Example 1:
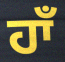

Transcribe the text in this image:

ਹਾਁ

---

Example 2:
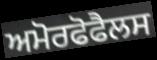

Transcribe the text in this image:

ਅਮੋਰਫੋਫੈਲਸ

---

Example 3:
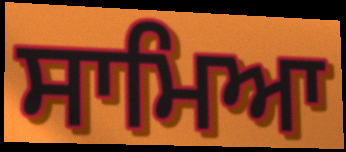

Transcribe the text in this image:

ਸਾਮਿਆ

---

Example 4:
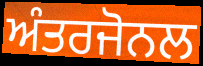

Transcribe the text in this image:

ਅੰਤਰਜੋਨਲ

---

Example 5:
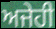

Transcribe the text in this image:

ਅਜੇਹੀ